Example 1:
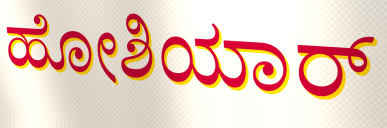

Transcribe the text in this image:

ಹೋಶಿಯಾರ್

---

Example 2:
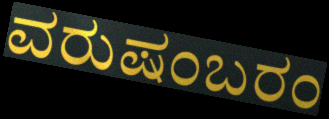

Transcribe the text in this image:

ವರುಷಂಬರಂ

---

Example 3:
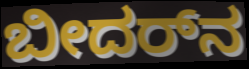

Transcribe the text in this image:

ಬೀದರ್‌ನ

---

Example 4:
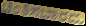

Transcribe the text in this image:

ಚಿಂತಿಸಬಾರದು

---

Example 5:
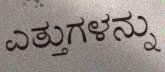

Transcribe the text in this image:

ಎತ್ತುಗಳನ್ನು